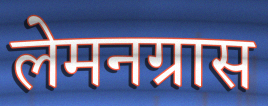
लेमनग्रास